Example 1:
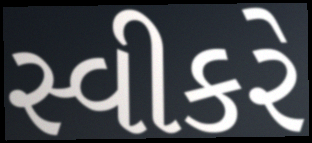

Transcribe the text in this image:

સ્વીકરે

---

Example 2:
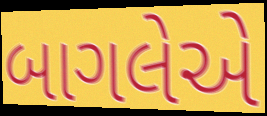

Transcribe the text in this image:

બાગલેએ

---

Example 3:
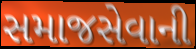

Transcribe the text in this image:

સમાજસેવાની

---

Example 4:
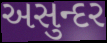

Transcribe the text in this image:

અસુન્દર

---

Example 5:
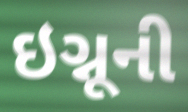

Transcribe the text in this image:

ઇગ્નૂની